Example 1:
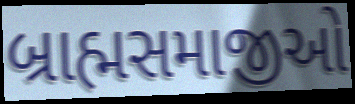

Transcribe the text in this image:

બ્રાહ્મસમાજીઓ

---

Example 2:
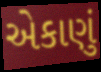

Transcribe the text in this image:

એકાણું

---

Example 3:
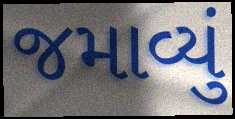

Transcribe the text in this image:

જમાવ્યું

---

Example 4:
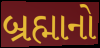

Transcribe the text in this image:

બ્રહ્માનો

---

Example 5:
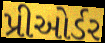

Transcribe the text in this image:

પ્રીઓર્ડર